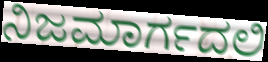
ನಿಜಮಾರ್ಗದಲಿ